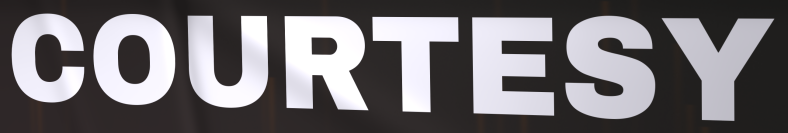
COURTESY